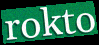
rokto